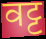
वट्ट